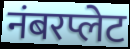
नंबरप्लेट